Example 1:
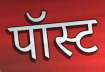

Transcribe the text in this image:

पॉस्ट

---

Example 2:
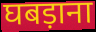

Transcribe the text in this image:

घबड़ाना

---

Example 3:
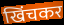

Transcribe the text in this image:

खिंचकर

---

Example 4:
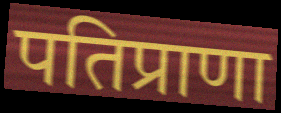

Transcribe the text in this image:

पतिप्राणा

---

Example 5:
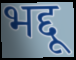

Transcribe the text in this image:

भद्दू